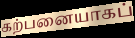
கற்பனையாகப்